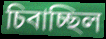
চিবাচ্ছিল